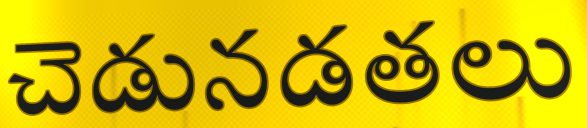
చెడునడతలు